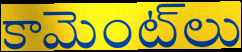
కామెంట్‌లు